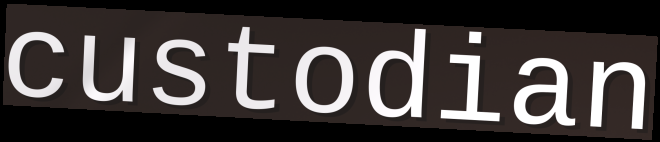
custodian